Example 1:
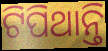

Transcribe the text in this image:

ଟିପିଥାନ୍ତି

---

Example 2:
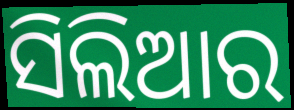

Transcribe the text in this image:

ସିଲିଆର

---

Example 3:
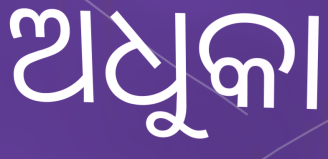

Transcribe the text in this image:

ଅଧୁକା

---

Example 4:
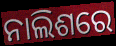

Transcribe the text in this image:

ନାଲିଶରେ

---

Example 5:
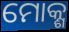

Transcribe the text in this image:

ମୋକ୍ଶ